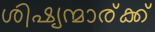
ശിഷ്യന്മാര്ക്ക്